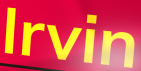
Irvin